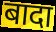
बादा